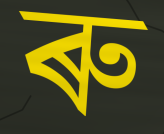
ৰু